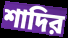
শাদির